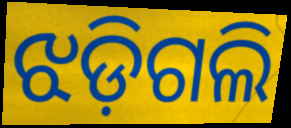
ଝଡ଼ିଗଲି